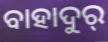
ବାହାଦୁର୍